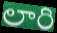
లారి